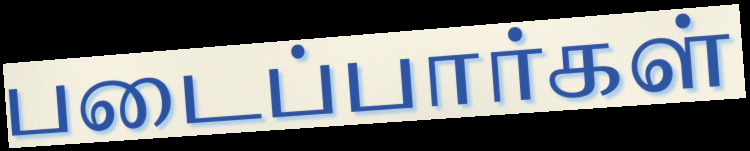
படைப்பார்கள்